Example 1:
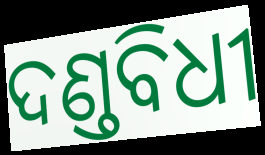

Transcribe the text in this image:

ଦଣ୍ଡବିଧୀ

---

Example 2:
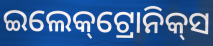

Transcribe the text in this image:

ଇଲେକ୍‌ଟ୍ରୋନିକ୍‌ସ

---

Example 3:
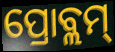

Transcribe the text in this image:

ପ୍ରୋବ୍ଲମ୍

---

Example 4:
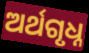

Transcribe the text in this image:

ଅର୍ଥଗୃଧ୍ନ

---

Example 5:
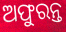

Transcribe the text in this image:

ଅଫୁରନ୍ତ